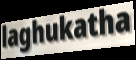
laghukatha